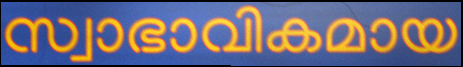
സ്വാഭാവികമായ